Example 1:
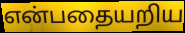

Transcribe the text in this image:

என்பதையறிய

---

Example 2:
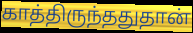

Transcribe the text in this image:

காத்திருந்ததுதான்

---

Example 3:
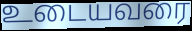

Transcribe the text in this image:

உடையவரை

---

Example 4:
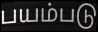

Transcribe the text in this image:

பயம்படு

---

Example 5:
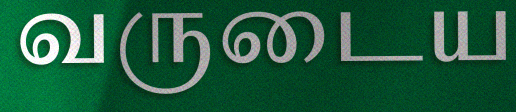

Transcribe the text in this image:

வருடைய